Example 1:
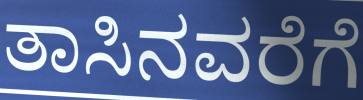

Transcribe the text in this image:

ತಾಸಿನವರೆಗೆ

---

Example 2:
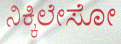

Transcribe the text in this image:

ನಿಕ್ಕಿಲೇಸೋ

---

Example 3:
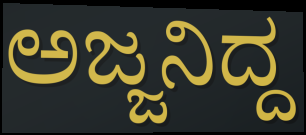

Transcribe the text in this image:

ಅಜ್ಜನಿದ್ದ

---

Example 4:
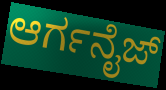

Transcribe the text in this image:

ಆರ್ಗನೈಜ್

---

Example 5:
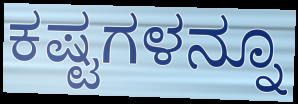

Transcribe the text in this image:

ಕಷ್ಟಗಳನ್ನೂ